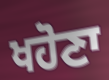
ਖਹੋਣਾ